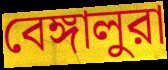
বেঙ্গালুরা